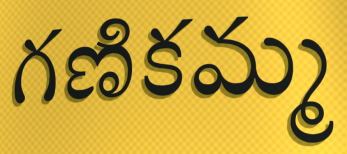
గణికమ్మ